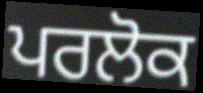
ਪਰਲੋਕ